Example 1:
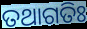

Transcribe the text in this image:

ତଥାଗତିଃ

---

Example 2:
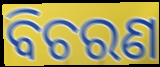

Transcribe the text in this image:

ବିଚରଣ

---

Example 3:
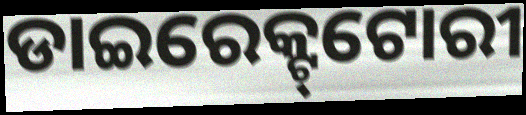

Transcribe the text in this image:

ଡାଇରେକ୍ଟ୍‌ଟୋରୀ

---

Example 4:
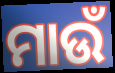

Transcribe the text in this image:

ମାଉଁ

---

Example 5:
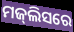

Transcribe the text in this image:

ମଜ୍‌ଲିସରେ